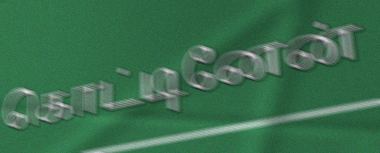
கொட்டினேன்